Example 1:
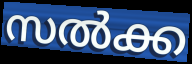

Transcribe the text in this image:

സൽക്ക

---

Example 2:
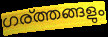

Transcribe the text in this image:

ഗര്ത്തങ്ങളും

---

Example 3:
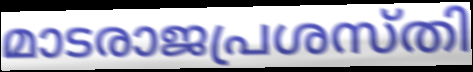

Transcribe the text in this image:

മാടരാജപ്രശസ്തി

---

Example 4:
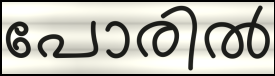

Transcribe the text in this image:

പോരിൽ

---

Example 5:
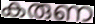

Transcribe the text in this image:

കരുണ